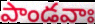
పాండవాః